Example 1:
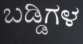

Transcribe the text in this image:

ಬಡ್ಡಿಗಳ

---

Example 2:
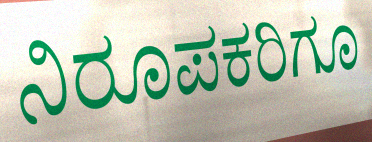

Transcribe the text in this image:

ನಿರೂಪಕರಿಗೂ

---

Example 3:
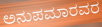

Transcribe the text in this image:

ಅನುಪಮಾರವರ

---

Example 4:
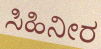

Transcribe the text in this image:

ಸಿಹಿನೀರ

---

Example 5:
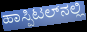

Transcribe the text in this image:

ಹಾಸ್ಪಿಟಲ್‌ನಲ್ಲಿ